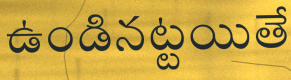
ఉండినట్టయితే